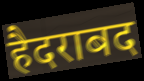
हैदराबद